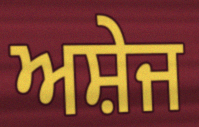
ਅਸ਼ੇਜ